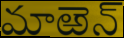
మాఱెన్